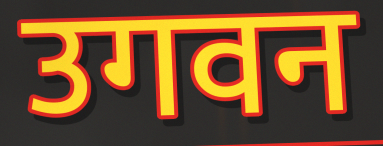
उगवन